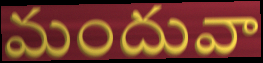
మందువా